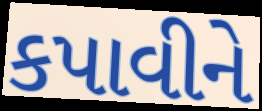
કપાવીને